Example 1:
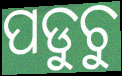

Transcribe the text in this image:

ପଡୁଚୁ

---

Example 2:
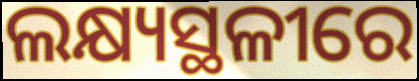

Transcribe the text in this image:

ଲକ୍ଷ୍ୟସ୍ଥଳୀରେ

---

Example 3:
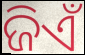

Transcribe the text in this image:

ଜିଏଁ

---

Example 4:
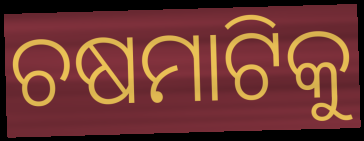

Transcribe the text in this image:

ଚଷମାଟିକୁ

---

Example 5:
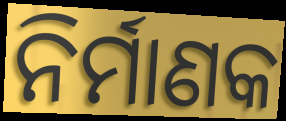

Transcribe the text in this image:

ନିର୍ମାଣକ